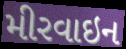
મીરવાઇન